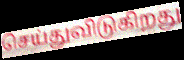
செய்துவிடுகிறது